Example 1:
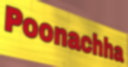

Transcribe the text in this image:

Poonachha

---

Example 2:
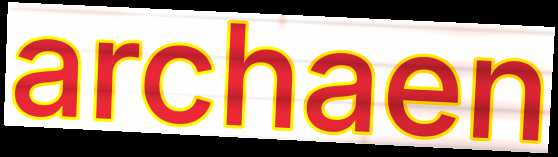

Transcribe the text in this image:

archaen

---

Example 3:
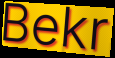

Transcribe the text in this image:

Bekr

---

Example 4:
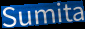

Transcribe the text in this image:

Sumita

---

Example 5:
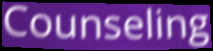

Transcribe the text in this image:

Counseling